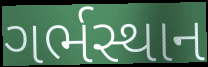
ગર્ભસ્થાન